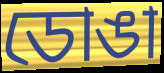
ডোঙা